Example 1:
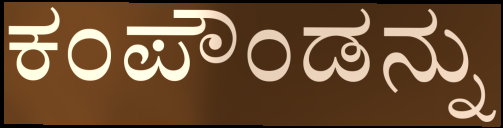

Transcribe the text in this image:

ಕಂಪೌಂಡನ್ನು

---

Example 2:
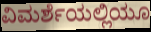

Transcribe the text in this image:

ವಿಮರ್ಶೆಯಲ್ಲಿಯೂ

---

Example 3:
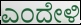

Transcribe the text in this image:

ಎಂದೇಳಿ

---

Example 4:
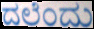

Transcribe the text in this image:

ದಲೆಂದು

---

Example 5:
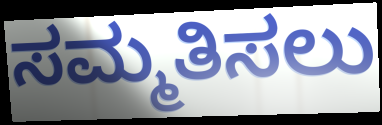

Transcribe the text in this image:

ಸಮ್ಮತಿಸಲು